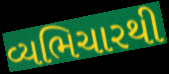
વ્યભિચારથી